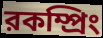
রকম্প্রিং